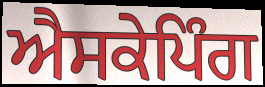
ਐਸਕੇਪਿੰਗ